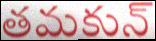
తమకున్